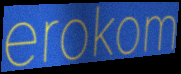
erokom